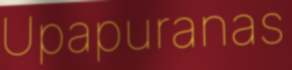
Upapuranas